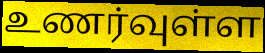
உணர்வுள்ள